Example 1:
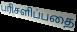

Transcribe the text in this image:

பரிசளிப்பதை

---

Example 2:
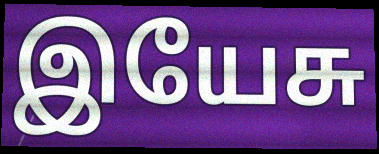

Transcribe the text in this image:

இயேசு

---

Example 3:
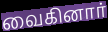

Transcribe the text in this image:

வைகினார்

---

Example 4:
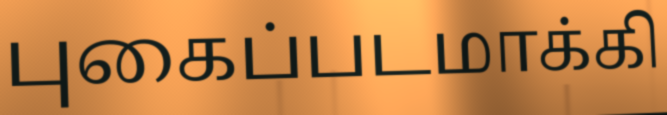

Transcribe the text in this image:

புகைப்படமாக்கி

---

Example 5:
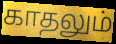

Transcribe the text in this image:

காதலும்